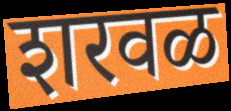
शरवळ